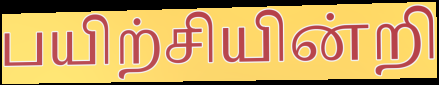
பயிற்சியின்றி